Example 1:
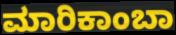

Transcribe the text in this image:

ಮಾರಿಕಾಂಬಾ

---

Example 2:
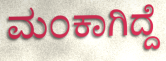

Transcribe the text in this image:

ಮಂಕಾಗಿದ್ದೆ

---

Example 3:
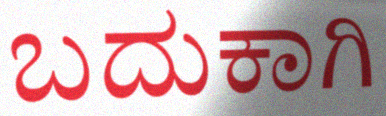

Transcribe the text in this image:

ಬದುಕಾಗಿ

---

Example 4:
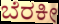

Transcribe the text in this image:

ಬೆರಕೀ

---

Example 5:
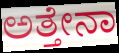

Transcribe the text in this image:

ಅತ್ತೇನಾ